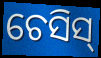
ଚେସିସ୍